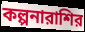
কল্পনারাশির